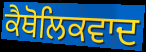
ਕੈਥੋਲਿਕਵਾਦ